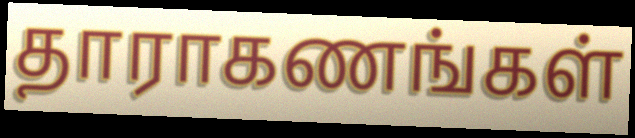
தாராகணங்கள்